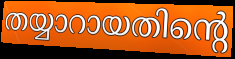
തയ്യാറായതിന്റെ